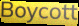
Boycott